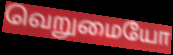
வெறுமையோ